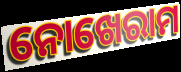
ନୋଖେରାମ